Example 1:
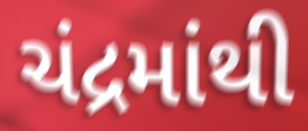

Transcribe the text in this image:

ચંદ્રમાંથી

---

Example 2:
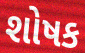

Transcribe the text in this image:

શોષક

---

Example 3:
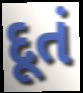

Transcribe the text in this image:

દૂતં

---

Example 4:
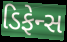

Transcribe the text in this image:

ડિફેન્સ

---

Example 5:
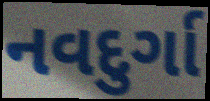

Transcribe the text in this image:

નવદુર્ગા